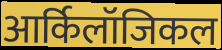
आर्किलॉजिकल